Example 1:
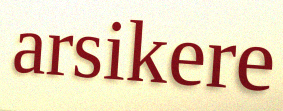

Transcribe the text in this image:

arsikere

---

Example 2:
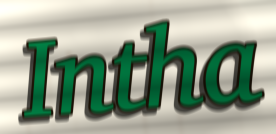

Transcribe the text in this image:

Intha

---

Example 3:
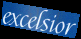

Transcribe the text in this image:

excelsior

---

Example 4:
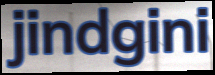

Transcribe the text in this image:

jindgini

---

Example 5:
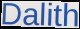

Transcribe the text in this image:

Dalith